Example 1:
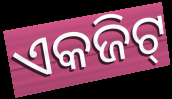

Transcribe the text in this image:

ଏକଜିଟ୍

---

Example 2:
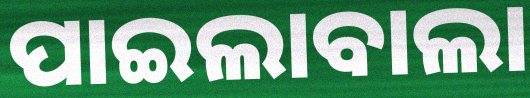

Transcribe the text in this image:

ପାଇଲାବାଲା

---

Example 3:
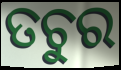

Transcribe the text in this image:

ତଚୁର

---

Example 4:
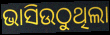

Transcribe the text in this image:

ଭାସିଉଠୁଥିଲା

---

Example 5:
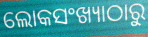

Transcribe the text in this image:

ଲୋକସଂଖ୍ୟାଠାରୁ